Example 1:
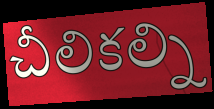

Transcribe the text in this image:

చీలికల్ని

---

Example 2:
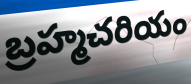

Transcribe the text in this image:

బ్రహ్మచరియం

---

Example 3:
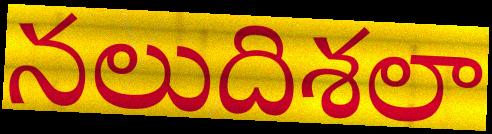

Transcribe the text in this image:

నలుదిశలా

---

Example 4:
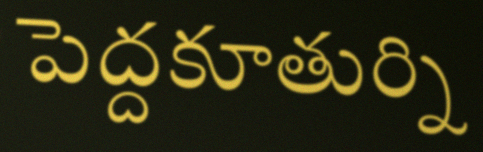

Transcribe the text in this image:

పెద్దకూతుర్ని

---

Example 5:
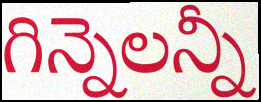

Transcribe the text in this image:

గిన్నెలన్నీ